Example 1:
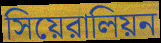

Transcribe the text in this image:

সিয়েরালিয়ন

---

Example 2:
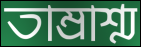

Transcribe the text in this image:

তাম্রাশ্ম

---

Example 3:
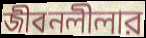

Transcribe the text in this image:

জীবনলীলার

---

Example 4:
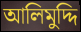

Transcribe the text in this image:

আলিমুদ্দি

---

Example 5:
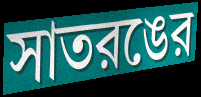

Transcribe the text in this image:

সাতরঙের